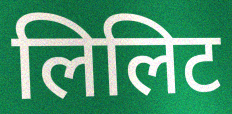
लिलिट